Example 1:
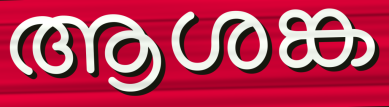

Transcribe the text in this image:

ആശങ്ക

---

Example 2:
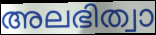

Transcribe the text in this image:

അലഭിത്വാ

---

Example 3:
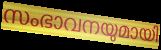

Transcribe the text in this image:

സംഭാവനയുമായി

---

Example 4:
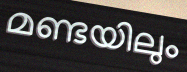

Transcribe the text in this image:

മണ്ടയിലും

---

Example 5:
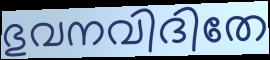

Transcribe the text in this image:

ഭുവനവിദിതേ